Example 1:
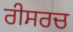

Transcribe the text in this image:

ਰੀਸਰਚ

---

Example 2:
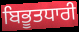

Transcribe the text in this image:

ਬਿਭੂਤਧਾਰੀ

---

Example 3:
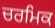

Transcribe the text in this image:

ਚਰਮਿਕ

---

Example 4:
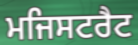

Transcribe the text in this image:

ਮਜਿਸਟਰੈਟ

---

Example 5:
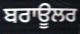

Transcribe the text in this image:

ਬਰਾਊਲਰ